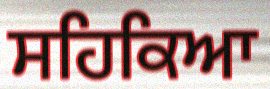
ਸਹਿਕਿਆ